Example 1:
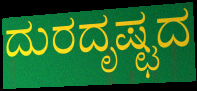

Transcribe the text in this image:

ದುರದೃಷ್ಟದ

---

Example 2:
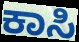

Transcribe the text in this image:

ಕಾಸಿ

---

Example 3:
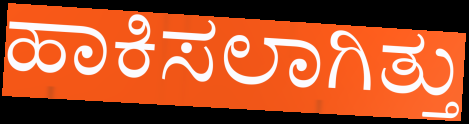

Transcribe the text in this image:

ಹಾಕಿಸಲಾಗಿತ್ತು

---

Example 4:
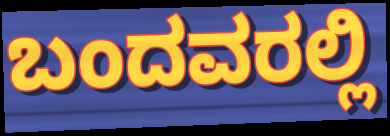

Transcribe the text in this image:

ಬಂದವರಲ್ಲಿ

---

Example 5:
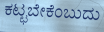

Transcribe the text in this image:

ಕಟ್ಟಬೇಕೆಂಬುದು